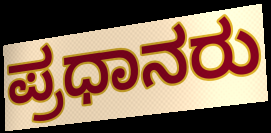
ಪ್ರಧಾನರು